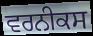
ਵਰਨੀਕਸ